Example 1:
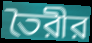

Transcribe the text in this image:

তৈরীর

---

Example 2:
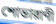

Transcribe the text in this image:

শোভারাণী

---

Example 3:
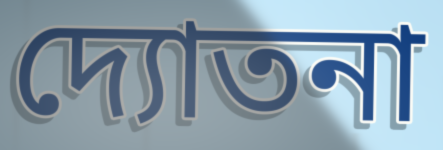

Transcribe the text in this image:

দ্যোতনা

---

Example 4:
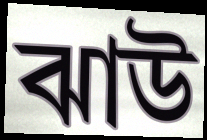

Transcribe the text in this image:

ঝাউ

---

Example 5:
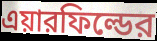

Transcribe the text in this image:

এয়ারফিল্ডের